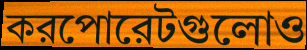
করপোরেটগুলোও